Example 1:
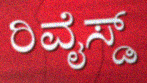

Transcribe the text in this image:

ರಿವೈಸ್ಡ್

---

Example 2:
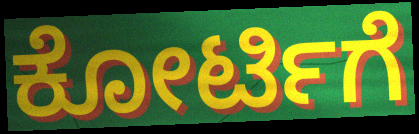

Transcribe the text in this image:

ಕೋರ್ಟಿಗೆ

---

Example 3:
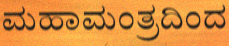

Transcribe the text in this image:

ಮಹಾಮಂತ್ರದಿಂದ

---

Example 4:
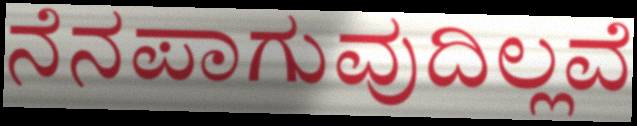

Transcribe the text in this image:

ನೆನಪಾಗುವುದಿಲ್ಲವೆ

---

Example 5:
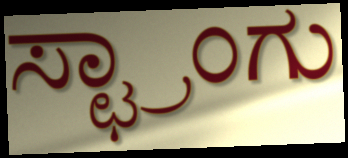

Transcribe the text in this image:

ಸ್ಟ್ರಾಂಗು